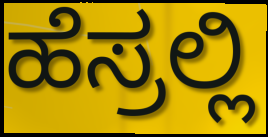
ಹೆಸ್ರಲ್ಲಿ